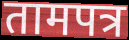
तामपत्र